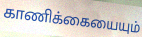
காணிக்கையையும்